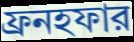
ফ্রনহফার